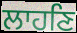
ਲਾਹਣਿ